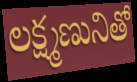
లక్ష్మణునితో